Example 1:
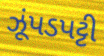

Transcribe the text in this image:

ઝૂંપડપટ્ટી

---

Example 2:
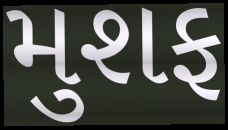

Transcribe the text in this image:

મુશફ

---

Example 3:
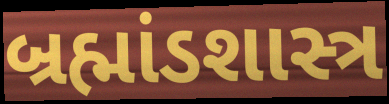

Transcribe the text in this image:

બ્રહ્માંડશાસ્ત્ર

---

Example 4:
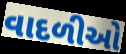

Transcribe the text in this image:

વાદળીઓ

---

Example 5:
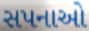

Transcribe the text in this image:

સપનાઓ